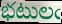
భటులఁ